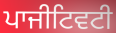
ਪਾਜੀਟਿਵਟੀ